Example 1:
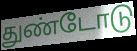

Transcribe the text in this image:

துண்டோடு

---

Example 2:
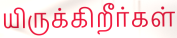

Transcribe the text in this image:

யிருக்கிறீர்கள்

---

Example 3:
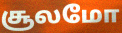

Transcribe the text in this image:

சூலமோ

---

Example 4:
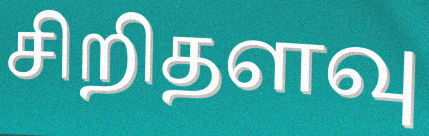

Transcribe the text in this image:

சிறிதளவு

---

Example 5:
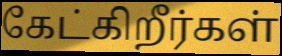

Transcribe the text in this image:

கேட்கிறீர்கள்